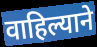
वाहिल्याने